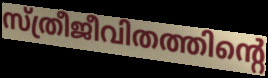
സ്ത്രീജീവിതത്തിന്റെ